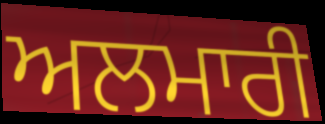
ਅਲਮਾਰੀ